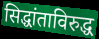
सिद्धांताविरुद्ध